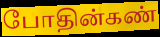
போதின்கண்